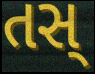
તસ્